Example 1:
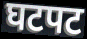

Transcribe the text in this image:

घटपट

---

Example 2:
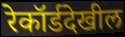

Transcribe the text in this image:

रेकॉर्डदेखील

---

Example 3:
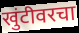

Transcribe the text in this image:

खुंटीवरचा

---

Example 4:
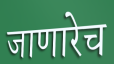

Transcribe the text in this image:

जाणारेच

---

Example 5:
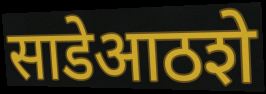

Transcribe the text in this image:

साडेआठशे